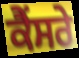
ਕੈਂਸਰੇ